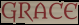
GRACE